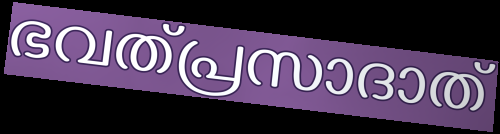
ഭവത്പ്രസാദാത്